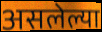
असलेल्या